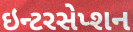
ઇન્ટરસેપ્શન